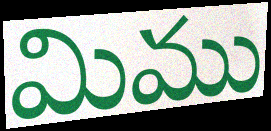
మిము